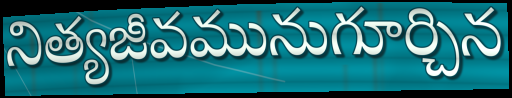
నిత్యజీవమునుగూర్చిన